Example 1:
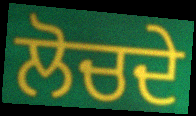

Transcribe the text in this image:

ਲੋਚਦੇ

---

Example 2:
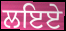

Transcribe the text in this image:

ਲਇਏ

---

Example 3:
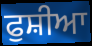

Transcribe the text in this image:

ਫੁਸ਼ੀਆ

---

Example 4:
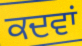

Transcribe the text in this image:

ਕਦਵਾਂ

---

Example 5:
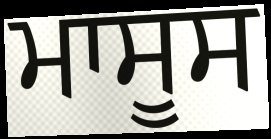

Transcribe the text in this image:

ਮਾਸੂਸ